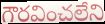
గౌరవించలేని